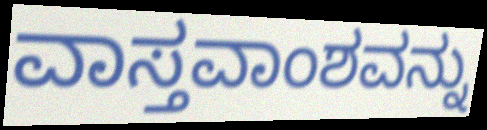
ವಾಸ್ತವಾಂಶವನ್ನು